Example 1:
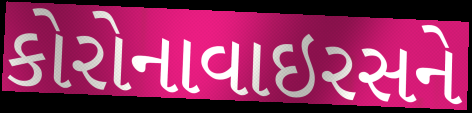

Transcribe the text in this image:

કોરોનાવાઇરસને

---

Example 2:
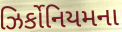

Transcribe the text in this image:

ઝિર્કોનિયમના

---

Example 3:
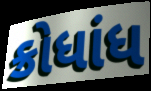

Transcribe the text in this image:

ક્રોધાંધ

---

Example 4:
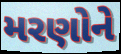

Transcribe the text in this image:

મરણોને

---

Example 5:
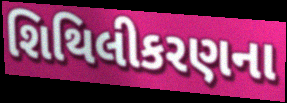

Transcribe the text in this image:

શિથિલીકરણના